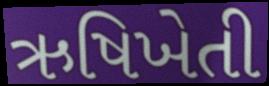
ઋષિખેતી